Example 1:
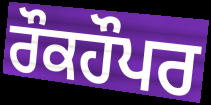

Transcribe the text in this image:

ਰੌਕਹੌਪਰ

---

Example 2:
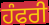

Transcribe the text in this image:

ਹੰਫਰੀ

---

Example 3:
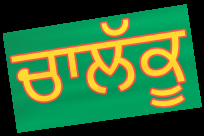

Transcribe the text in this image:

ਚਾਲੱਕੂ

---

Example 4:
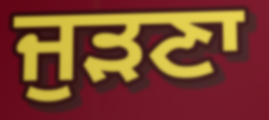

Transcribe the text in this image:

ਜੁੜਣਾ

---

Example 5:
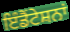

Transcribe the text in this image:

ਇੰਡੈਂਟੇਸ਼ਨਾਂ